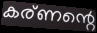
കര്ണന്റെ